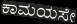
ಕಾಮಯಸೇ